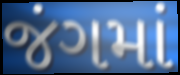
જંગમાં